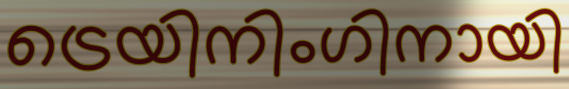
ട്രെയിനിംഗിനായി